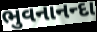
ભુવનાનન્દા